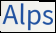
Alps